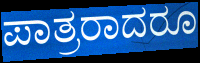
ಪಾತ್ರರಾದರೂ